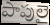
పాపులై